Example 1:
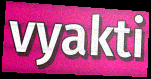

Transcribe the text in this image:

vyakti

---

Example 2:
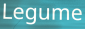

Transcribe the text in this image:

Legume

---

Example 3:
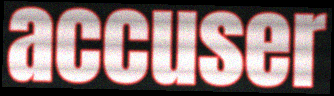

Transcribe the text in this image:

accuser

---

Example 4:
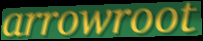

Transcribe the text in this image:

arrowroot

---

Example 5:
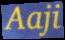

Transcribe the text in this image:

Aaji